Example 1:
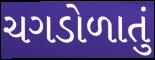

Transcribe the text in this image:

ચગડોળાતું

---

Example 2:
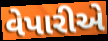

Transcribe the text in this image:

વેપારીએ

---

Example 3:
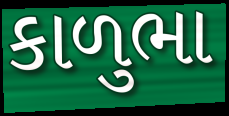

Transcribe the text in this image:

કાળુભા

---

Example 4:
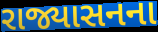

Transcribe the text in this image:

રાજ્યાસનના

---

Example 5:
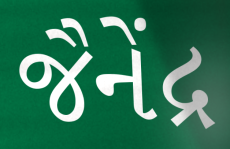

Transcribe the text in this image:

જૈનેંદ્ર